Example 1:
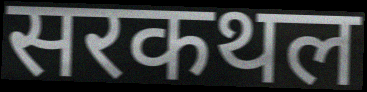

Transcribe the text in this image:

सरकथल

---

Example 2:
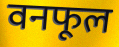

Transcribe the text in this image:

वनफूल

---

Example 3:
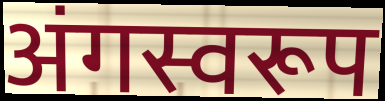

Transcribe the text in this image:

अंगस्वरूप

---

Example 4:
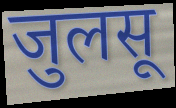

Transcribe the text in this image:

जुलसू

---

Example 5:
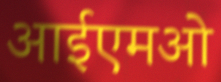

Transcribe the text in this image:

आईएमओ